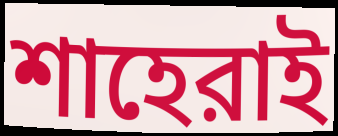
শাহেরাই